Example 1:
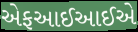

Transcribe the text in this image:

એફઆઈઆઈએ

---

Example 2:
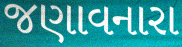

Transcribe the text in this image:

જણાવનારા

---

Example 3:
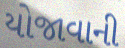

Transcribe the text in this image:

યોજાવાની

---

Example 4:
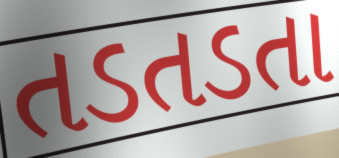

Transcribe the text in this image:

તડતડતા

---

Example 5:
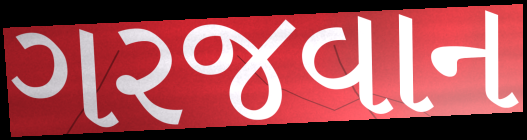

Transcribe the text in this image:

ગરજવાન